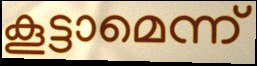
കൂട്ടാമെന്ന്